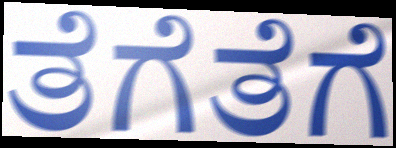
ತೆಗೆತೆಗೆ